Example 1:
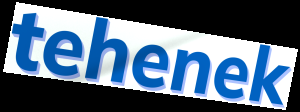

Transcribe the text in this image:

tehenek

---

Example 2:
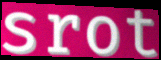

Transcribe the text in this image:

srot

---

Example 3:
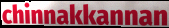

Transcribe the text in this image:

chinnakkannan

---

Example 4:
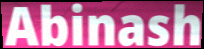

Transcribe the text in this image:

Abinash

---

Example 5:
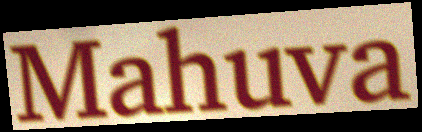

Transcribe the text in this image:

Mahuva